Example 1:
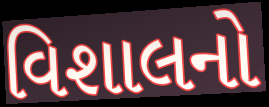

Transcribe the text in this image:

વિશાલનો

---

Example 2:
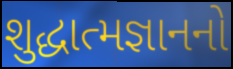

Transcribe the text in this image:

શુદ્ધાત્મજ્ઞાનનો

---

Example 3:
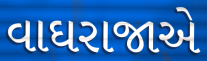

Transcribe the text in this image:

વાઘરાજાએ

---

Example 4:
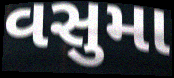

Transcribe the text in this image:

વસુમા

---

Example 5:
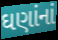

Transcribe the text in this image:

ઘણાંનાં